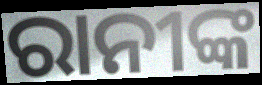
ରାନୀଙ୍କ